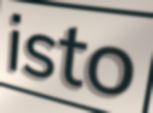
isto